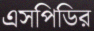
এসপিডির